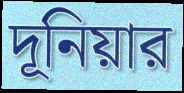
দূনিয়ার